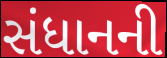
સંધાનની